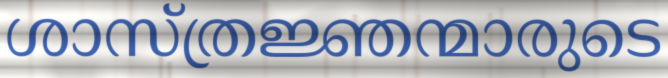
ശാസ്ത്രജ്ഞന്മാരുടെ